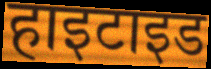
हाइटाइड